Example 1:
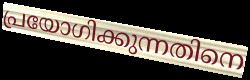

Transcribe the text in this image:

പ്രയോഗിക്കുന്നതിനെ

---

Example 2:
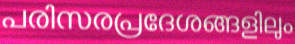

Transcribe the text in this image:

പരിസരപ്രദേശങ്ങളിലും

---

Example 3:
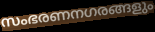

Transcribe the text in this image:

സംഭരണനഗരങ്ങളും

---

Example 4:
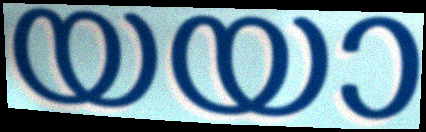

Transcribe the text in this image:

യയാ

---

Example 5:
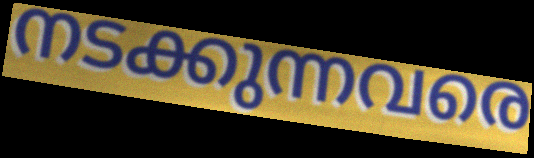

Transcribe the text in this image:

നടക്കുന്നവരെ